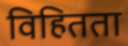
विहितता